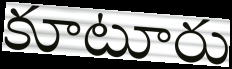
కూటూరు